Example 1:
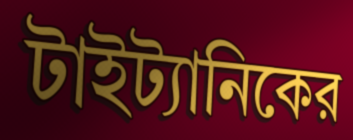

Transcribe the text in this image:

টাইট্যানিকের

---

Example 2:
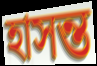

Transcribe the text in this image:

হাসন্ত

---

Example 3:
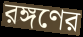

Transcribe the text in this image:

রঙ্গণের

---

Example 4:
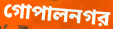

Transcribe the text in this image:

গোপালনগর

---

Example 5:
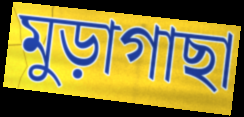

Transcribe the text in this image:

মুড়াগাছা